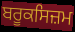
ਬਰੂਕਸਿਜ਼ਮ